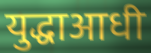
युद्धाआधी